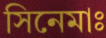
সিনেমাঃ